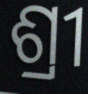
ଶ୍ରୀ